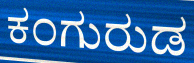
ಕಂಗುರುಡ